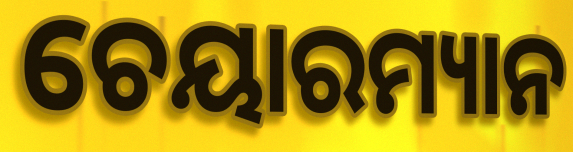
ଚେୟାରମ୍ୟାନ